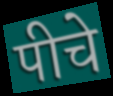
पीचे